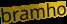
bramho